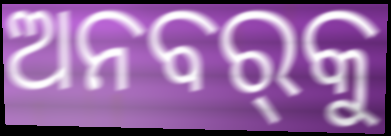
ଅନବର୍‌କୁ